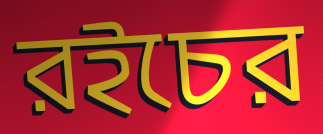
রইচের